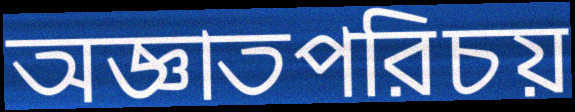
অজ্ঞাতপরিচয়